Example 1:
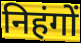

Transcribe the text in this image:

निहंगों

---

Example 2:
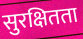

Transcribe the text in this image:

सुरक्षितता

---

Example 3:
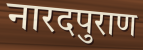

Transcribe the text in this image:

नारदपुराण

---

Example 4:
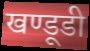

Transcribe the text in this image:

खण्डूडी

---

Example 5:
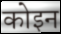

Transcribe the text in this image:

कोइन